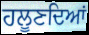
ਹਲੂਣਦਿਆਂ